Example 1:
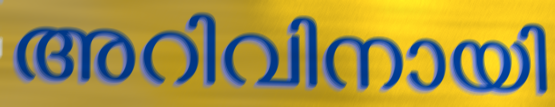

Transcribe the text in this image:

അറിവിനായി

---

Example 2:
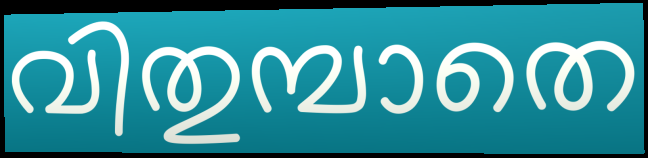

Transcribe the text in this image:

വിതുമ്പാതെ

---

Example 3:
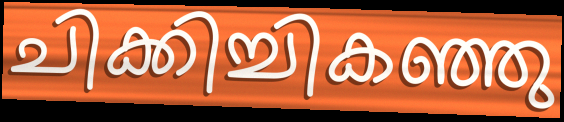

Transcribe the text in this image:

ചിക്കിച്ചികഞ്ഞു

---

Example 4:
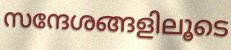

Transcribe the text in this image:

സന്ദേശങ്ങളിലൂടെ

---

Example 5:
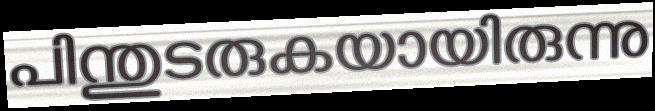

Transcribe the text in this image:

പിന്തുടരുകയായിരുന്നു